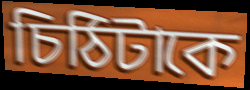
চিঠিটাকে